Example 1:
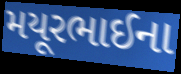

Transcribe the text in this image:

મયૂરભાઈના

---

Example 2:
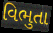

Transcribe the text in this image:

વિભુતા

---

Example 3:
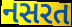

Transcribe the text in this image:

નસરત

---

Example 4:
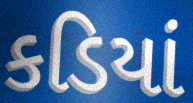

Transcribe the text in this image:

કડિયાં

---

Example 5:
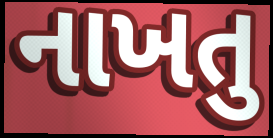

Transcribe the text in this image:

નાખતુ